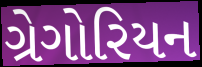
ગ્રેગોરિયન